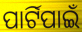
ପାର୍ଟିପାଇଁ